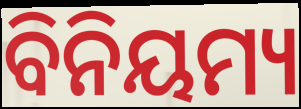
ବିନିୟମ୍ୟ